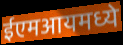
ईएमआयमध्ये